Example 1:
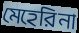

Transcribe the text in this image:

মেহেরিনা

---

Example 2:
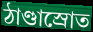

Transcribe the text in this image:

ঠাণ্ডাস্রোত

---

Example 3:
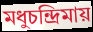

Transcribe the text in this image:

মধুচন্দ্রিমায়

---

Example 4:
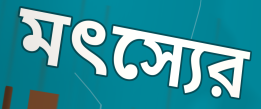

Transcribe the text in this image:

মৎস্যের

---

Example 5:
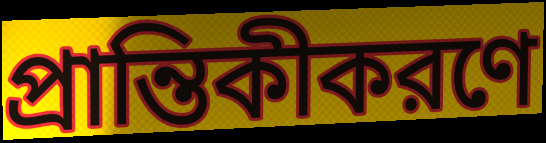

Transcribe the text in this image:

প্রান্তিকীকরণে